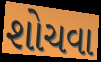
શોચવા